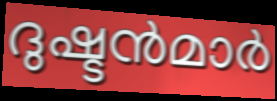
ദുഷ്ടൻമാർ